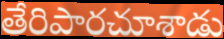
తేరిపారచూశాడు